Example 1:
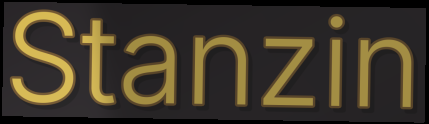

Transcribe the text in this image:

Stanzin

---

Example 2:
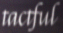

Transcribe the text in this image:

tactful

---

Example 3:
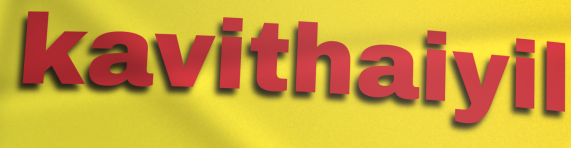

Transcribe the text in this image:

kavithaiyil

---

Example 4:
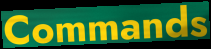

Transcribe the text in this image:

Commands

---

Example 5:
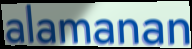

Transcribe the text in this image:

alamanan